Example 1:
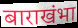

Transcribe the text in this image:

बाराखंभा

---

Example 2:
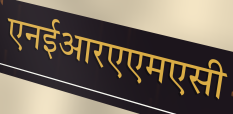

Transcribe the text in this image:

एनईआरएएमएसी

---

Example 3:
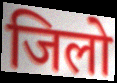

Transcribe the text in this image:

जिलो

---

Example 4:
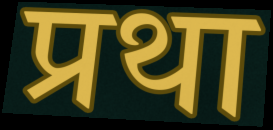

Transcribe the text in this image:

प्रथा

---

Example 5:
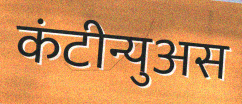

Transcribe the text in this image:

कंटीन्युअस